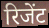
रिजेंट